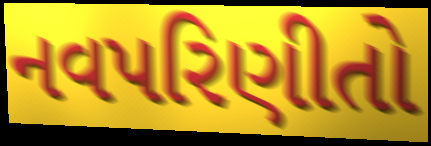
નવપરિણીતો